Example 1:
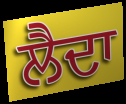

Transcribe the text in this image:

ਲੈਦਾ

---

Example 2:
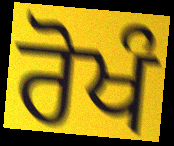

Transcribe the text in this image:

ਰੋਖੰ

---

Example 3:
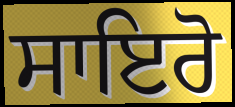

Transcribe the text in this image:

ਸਾਇਰੋ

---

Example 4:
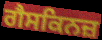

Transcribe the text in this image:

ਗੈਸਕਿਨਜ਼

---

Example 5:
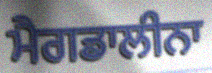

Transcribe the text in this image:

ਮੈਗਡਾਲੀਨਾ